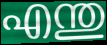
എന്തു